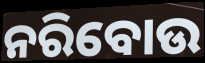
ନରିବୋଉ